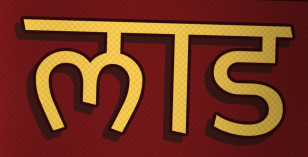
लाड